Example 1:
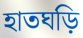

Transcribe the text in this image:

হাতঘড়ি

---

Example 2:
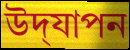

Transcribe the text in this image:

উদ্‌যাপন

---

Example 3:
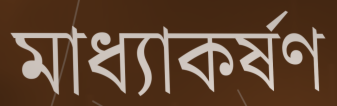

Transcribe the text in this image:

মাধ্যাকৰ্ষণ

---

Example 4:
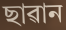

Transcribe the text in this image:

ছাৱান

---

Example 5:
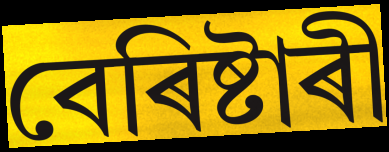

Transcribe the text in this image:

বেৰিষ্টাৰী